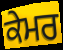
ਕੇਮਰ